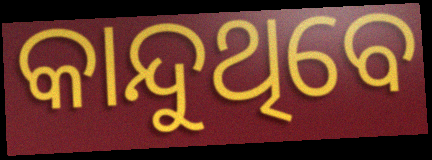
କାନ୍ଦୁଥିବେ